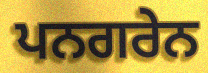
ਪਨਗਰੇਨ